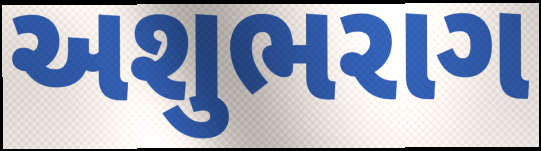
અશુભરાગ